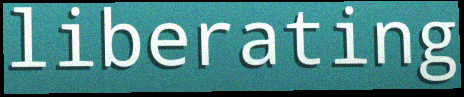
liberating